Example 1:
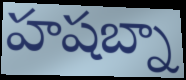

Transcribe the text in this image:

హషబ్నా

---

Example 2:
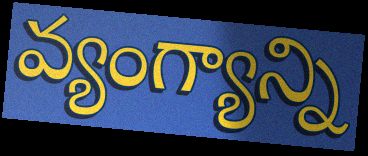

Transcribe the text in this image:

వ్యంగ్యాన్ని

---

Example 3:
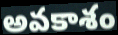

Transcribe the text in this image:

అవకాశం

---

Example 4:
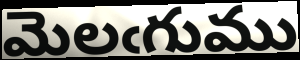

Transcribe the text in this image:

మెలఁగుము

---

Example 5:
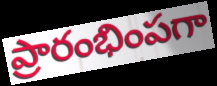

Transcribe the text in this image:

ప్రారంభింపగా